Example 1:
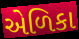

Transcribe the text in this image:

એળિકા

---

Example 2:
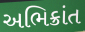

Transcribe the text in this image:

અભિક્રાંત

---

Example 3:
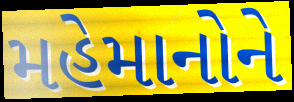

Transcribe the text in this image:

મહેમાનોને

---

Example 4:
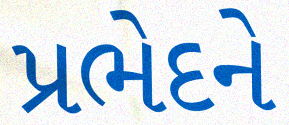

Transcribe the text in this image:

પ્રભેદને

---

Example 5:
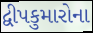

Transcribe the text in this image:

દ્વીપકુમારોના